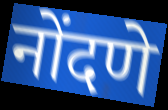
नोंदणे